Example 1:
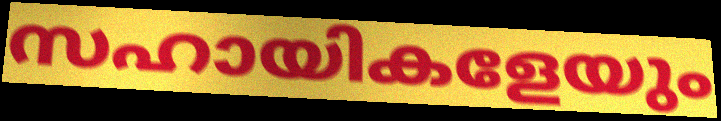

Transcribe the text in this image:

സഹായികളേയും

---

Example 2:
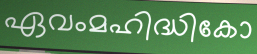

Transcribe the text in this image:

ഏവംമഹിദ്ധികോ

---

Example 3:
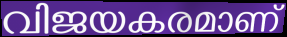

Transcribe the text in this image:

വിജയകരമാണ്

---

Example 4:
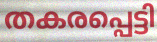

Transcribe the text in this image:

തകരപ്പെട്ടി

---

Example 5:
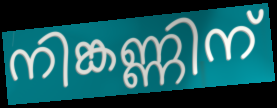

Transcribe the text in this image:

നിങ്കണ്ണിന്